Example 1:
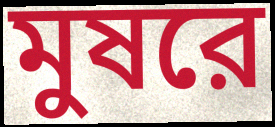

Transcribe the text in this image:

মুষরে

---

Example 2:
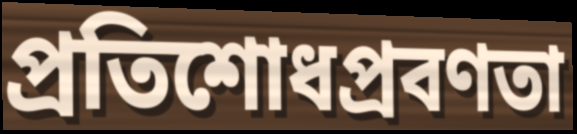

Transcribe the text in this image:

প্রতিশোধপ্রবণতা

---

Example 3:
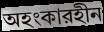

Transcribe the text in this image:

অহংকারহীন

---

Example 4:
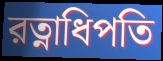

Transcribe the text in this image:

রত্নাধিপতি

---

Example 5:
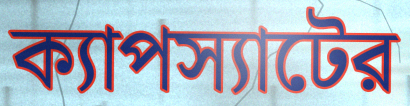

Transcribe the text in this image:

ক্যাপস্যাটের